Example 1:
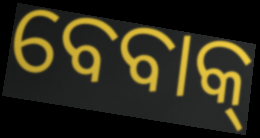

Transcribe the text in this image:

ବେବାକ୍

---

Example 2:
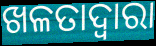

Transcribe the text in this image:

ଖଳତାଦ୍ଵାରା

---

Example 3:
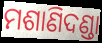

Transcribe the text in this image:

ମଶାଣିଦଣ୍ଡା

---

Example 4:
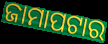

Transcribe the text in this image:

ଜାମାପଟାର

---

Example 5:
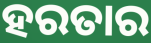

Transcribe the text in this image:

ହରତାର